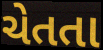
ચેતતા